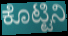
ಕೊಟ್ಟಿನಿ